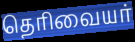
தெரிவையர்